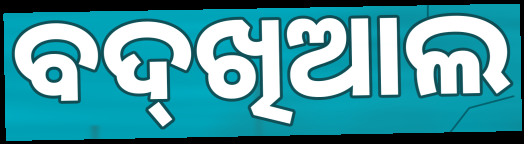
ବଦ୍‌ଖିଆଲ